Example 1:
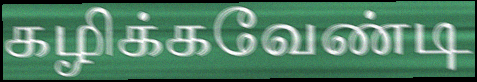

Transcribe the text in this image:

கழிக்கவேண்டி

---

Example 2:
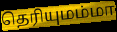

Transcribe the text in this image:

தெரியுமம்மா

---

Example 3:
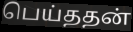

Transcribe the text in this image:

பெய்ததன்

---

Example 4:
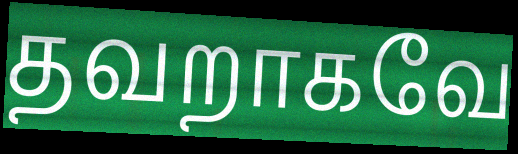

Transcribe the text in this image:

தவறாகவே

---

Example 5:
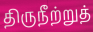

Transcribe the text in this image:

திருநீற்றுத்